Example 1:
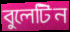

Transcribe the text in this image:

বুলেটিন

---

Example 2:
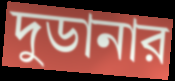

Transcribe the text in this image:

দুডানার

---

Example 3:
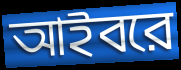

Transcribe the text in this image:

আইবরে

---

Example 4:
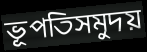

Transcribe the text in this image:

ভূপতিসমুদয়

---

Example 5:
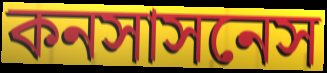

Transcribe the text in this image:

কনসাসনেস